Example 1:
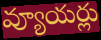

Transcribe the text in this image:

వ్యూయర్లు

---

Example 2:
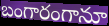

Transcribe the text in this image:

బంగారంగానూ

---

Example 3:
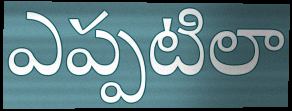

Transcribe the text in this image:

ఎప్పటిలా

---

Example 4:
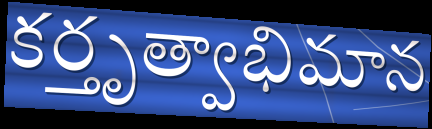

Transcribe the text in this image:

కర్తృత్వాభిమాన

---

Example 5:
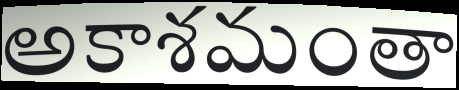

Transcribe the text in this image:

అకాశమంతా